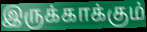
இருக்காக்கும்